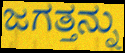
ಜಗತ್ತನ್ನು